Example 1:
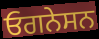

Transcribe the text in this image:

ਓਗਨੇਸਨ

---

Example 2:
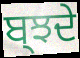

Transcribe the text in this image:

ਬ੍ਝਦੇ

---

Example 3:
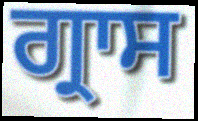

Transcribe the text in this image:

ਗ੍ਰਾਸ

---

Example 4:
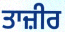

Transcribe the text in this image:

ਤਾਜ਼ੀਰ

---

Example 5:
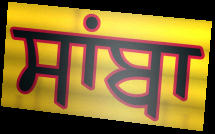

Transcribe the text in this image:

ਸਾਂਬਾ